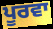
ਪੂਰਵਾ